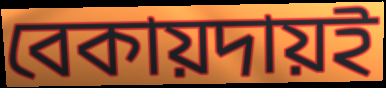
বেকায়দায়ই